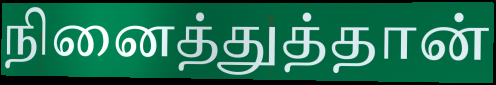
நினைத்துத்தான்